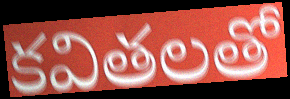
కవితలతో